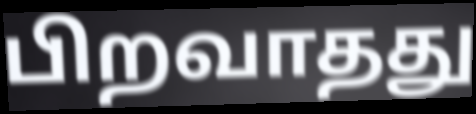
பிறவாதது